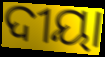
ଦୀୟା